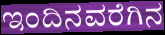
ಇಂದಿನವರೆಗಿನ